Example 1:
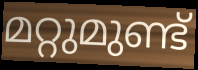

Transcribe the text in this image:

മറ്റുമുണ്ട്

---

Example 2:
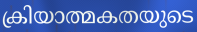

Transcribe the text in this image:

ക്രിയാത്മകതയുടെ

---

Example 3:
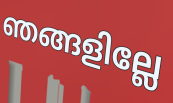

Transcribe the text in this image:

ഞങ്ങളില്ലേ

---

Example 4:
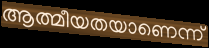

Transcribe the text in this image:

ആത്മീയതയാണെന്ന്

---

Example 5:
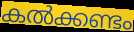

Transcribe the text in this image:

കൽക്കണ്ടം